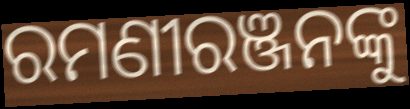
ରମଣୀରଞ୍ଜନଙ୍କୁ